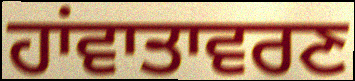
ਹਾਂਵਾਤਾਵਰਣ